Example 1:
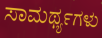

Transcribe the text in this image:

ಸಾಮರ್ಥ್ಯಗಳು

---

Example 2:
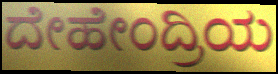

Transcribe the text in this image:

ದೇಹೇಂದ್ರಿಯ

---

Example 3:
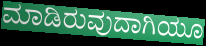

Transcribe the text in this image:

ಮಾಡಿರುವುದಾಗಿಯೂ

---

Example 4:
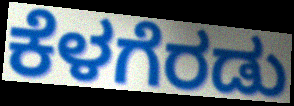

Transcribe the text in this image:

ಕೆಳಗೆರಡು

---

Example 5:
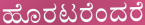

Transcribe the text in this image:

ಹೊರಟರೆಂದರೆ